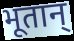
भूतान्